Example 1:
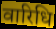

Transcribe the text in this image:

वारिधि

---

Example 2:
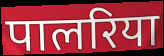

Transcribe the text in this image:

पालरिया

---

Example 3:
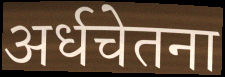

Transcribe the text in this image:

अर्धचेतना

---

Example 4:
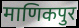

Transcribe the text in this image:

माणिकपुर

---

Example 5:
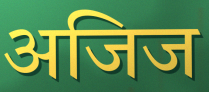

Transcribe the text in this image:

अजिज